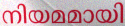
നിയമമായി